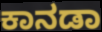
ಕಾನಡಾ